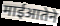
माईआतेने